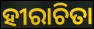
ହୀରାଚିତା